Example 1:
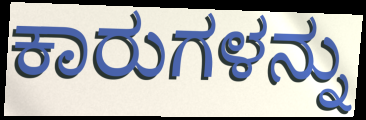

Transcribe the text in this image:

ಕಾರುಗಳನ್ನು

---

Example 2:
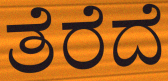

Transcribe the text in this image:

ತೆರೆದೆ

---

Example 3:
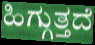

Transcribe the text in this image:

ಹಿಗ್ಗುತ್ತದೆ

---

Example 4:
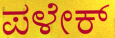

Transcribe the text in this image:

ಪಳೇಕ್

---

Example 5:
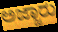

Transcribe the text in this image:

ಅಜ್ಜಾರು